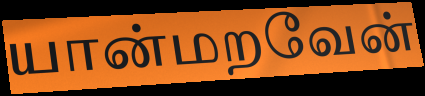
யான்மறவேன்